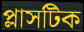
প্লাসটিক